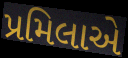
પ્રમિલાએ